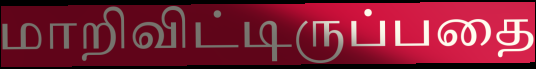
மாறிவிட்டிருப்பதை